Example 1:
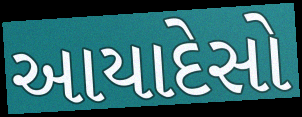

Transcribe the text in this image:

આયાદેસો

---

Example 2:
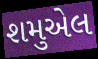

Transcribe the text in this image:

શમુએલ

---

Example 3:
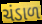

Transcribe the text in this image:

ચંડાળ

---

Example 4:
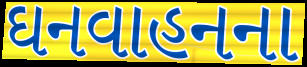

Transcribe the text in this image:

ઘનવાહનના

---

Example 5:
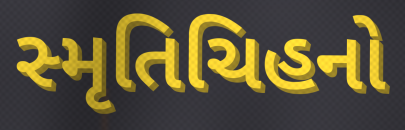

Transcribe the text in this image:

સ્મૃતિચિહનો